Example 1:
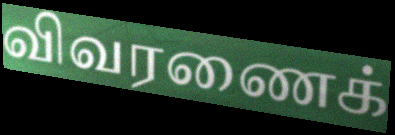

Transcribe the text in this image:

விவரணைக்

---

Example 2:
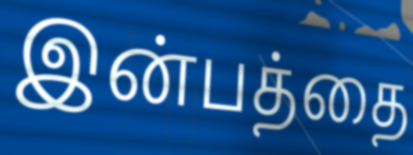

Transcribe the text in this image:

இன்பத்தை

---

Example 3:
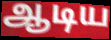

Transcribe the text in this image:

ஆடிய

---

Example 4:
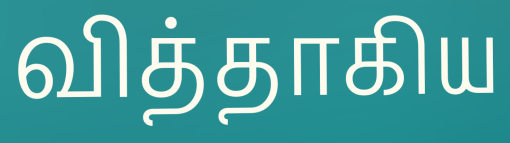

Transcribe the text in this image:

வித்தாகிய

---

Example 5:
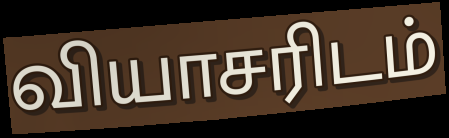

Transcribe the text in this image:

வியாசரிடம்